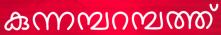
കുന്നമ്പറമ്പത്ത്